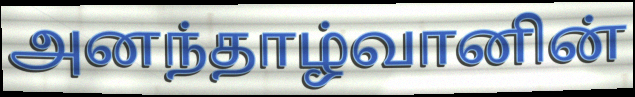
அனந்தாழ்வானின்